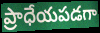
ప్రాధేయపడగా